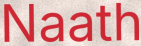
Naath